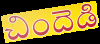
చిందెడి